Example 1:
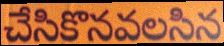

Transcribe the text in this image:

చేసికొనవలసిన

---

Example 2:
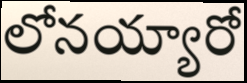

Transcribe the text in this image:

లోనయ్యారో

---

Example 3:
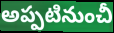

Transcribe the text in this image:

అప్పటినుంచీ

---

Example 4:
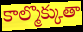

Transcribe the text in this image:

కాల్మొక్కుతా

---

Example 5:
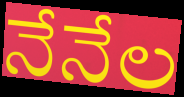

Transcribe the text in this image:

నేనేల